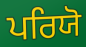
ਪਰਿਯੋ